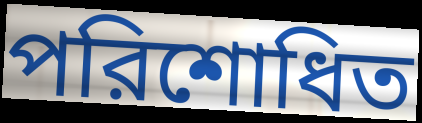
পরিশোধিত